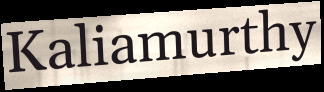
Kaliamurthy